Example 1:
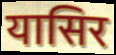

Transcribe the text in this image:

यासिर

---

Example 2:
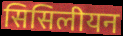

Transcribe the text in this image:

सिसिलीयन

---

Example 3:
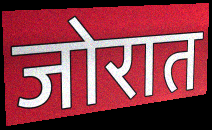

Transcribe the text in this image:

जोरात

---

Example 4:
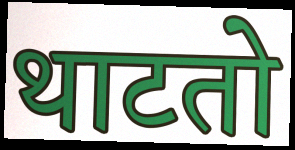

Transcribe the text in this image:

थाटतो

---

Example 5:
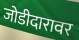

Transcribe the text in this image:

जोडीदारावर